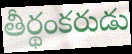
తీర్థంకరుడు